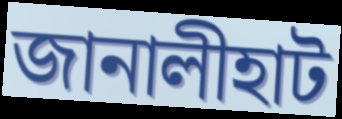
জানালীহাট